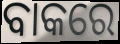
ବାକରେ